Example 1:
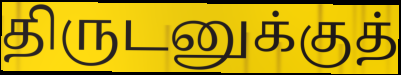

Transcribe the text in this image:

திருடனுக்குத்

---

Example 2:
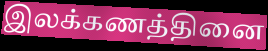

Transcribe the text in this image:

இலக்கணத்தினை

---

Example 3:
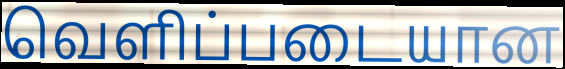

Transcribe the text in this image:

வெளிப்படையான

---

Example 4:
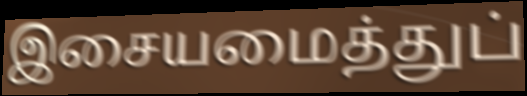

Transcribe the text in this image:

இசையமைத்துப்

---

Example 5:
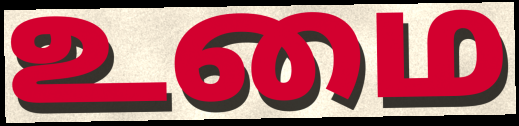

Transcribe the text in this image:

உமை